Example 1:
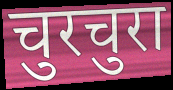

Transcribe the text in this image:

चुरचुरा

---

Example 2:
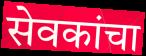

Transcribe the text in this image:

सेवकांचा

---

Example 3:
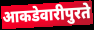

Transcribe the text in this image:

आकडेवारीपुरते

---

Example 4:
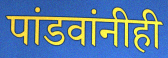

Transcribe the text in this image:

पांडवांनीही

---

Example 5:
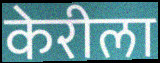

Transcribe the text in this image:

केरीला